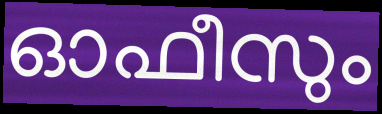
ഓഫീസും